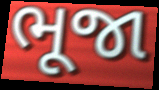
ભૂજા